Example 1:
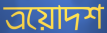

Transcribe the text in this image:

ত্ৰয়োদশ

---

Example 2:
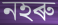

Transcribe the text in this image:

নহৰু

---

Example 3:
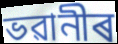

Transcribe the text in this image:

ভৱানীৰ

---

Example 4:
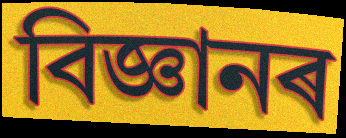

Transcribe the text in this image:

বিজ্ঞানৰ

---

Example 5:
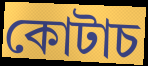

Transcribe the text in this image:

কোটাচ